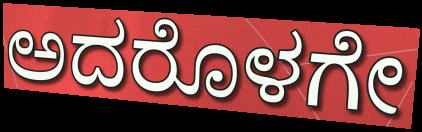
ಅದರೊಳಗೇ